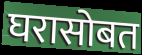
घरासोबत